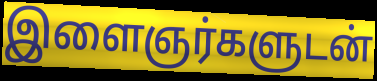
இளைஞர்களுடன்